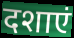
दशाएं